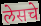
लेसचे